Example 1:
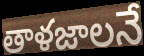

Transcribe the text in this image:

తాళజాలనే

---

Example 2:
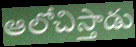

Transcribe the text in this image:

ఆలోచిస్తాడు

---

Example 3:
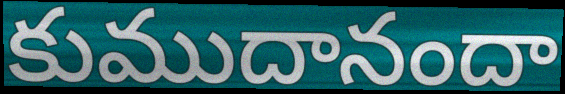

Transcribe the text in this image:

కుముదానందా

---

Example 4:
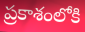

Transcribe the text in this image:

ప్రకాశంలోకి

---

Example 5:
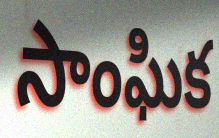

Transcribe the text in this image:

సాంఘిక